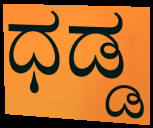
ಧಡ್ಡ